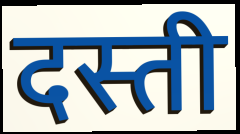
दस्ती